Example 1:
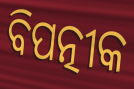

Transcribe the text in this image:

ବିପତ୍ନୀକ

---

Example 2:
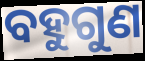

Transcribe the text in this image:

ବହୁଗୁଣ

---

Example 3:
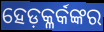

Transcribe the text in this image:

ହେଡ଼କ୍ଳର୍କଙ୍କର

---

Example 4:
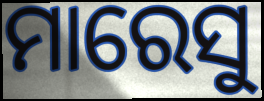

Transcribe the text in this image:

ମାରେସୁ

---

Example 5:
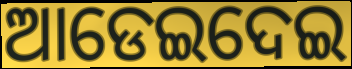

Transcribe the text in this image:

ଆଡେଇଦେଇ